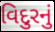
વિદુરનું